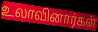
உலாவினார்கள்